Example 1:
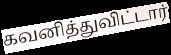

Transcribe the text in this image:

கவனித்துவிட்டார்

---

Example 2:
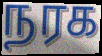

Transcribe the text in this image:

நரக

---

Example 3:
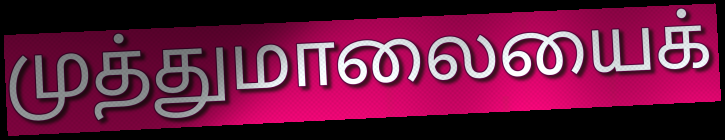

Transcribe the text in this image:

முத்துமாலையைக்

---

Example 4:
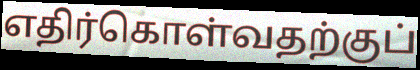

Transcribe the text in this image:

எதிர்கொள்வதற்குப்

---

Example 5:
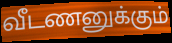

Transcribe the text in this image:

வீடணனுக்கும்